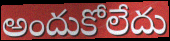
అందుకోలేదు